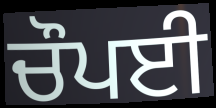
ਚੌਪਈ